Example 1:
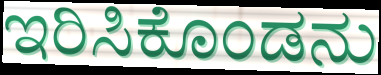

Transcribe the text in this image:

ಇರಿಸಿಕೊಂಡನು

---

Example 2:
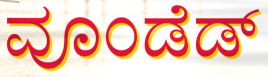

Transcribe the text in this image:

ವೂಂಡೆಡ್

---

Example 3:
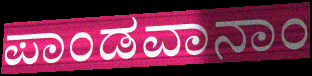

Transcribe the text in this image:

ಪಾಂಡವಾನಾಂ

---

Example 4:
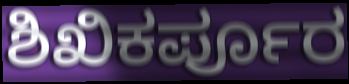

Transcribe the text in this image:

ಶಿಖಿಕರ್ಪೂರ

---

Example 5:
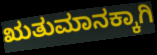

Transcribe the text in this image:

ಋತುಮಾನಕ್ಕಾಗಿ